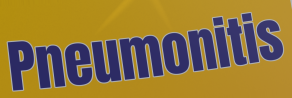
Pneumonitis